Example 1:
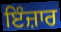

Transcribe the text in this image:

ਇੰਜ਼ਾਰ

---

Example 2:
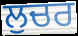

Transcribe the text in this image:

ਲੁਚਰ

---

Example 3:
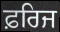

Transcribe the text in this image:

ਫ਼ਰਿਜ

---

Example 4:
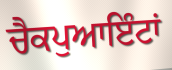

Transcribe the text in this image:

ਚੈਕਪੁਆਇੰਟਾਂ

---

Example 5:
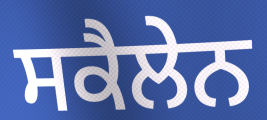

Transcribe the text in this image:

ਸਕੈਲੇਨ